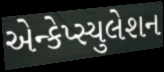
એન્કેપ્સ્યુલેશન